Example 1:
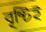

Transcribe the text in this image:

বৃষ্টিই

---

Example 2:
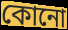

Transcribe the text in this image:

কোনো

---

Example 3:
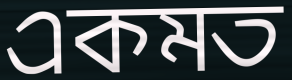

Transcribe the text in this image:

একমত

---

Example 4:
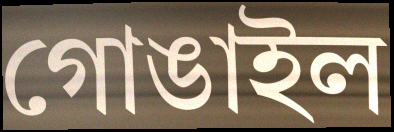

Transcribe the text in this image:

গোঙাইল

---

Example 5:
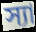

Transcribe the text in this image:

স্যা